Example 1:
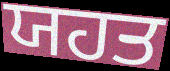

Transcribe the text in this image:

ਯਹਤ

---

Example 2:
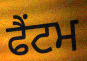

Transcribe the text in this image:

ਫੈਂਟਮ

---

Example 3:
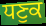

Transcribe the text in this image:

ਧਣੁਕ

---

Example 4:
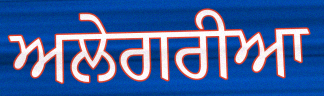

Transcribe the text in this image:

ਅਲੇਗਰੀਆ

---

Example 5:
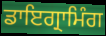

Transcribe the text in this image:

ਡਾਇਗ੍ਰਾਮਿੰਗ